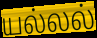
யல்லல்